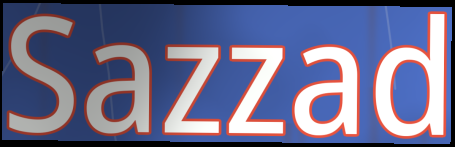
Sazzad